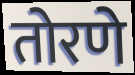
तोरणे